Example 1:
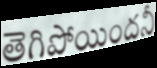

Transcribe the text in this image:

తెగిపోయిందనీ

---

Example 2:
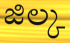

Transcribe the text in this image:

జిల్క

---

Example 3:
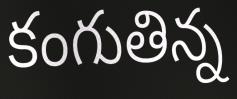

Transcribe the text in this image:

కంగుతిన్న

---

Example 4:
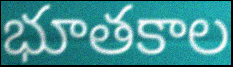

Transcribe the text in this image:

భూతకాల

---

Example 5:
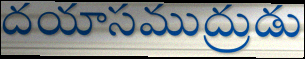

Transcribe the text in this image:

దయాసముద్రుడు